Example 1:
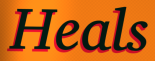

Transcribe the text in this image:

Heals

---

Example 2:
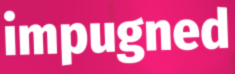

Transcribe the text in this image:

impugned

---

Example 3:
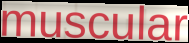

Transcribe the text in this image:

muscular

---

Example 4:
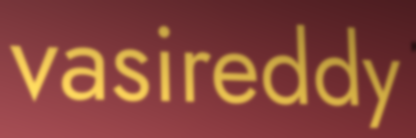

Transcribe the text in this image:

vasireddy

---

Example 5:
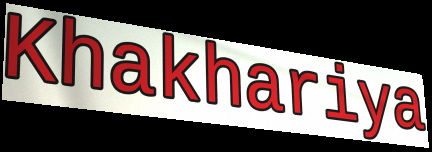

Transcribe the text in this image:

Khakhariya